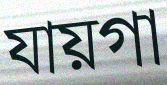
যায়গা